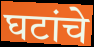
घटांचे